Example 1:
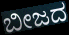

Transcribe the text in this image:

ಬೀಜದ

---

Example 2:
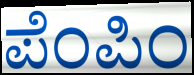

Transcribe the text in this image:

ಪೆಂಪಿಂ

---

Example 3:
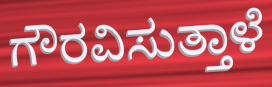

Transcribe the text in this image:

ಗೌರವಿಸುತ್ತಾಳೆ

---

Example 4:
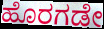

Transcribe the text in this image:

ಹೊರಗಡೇ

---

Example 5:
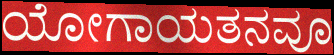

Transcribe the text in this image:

ಯೋಗಾಯತನವೂ